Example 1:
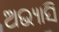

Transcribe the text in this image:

ଅଭ୍ୟାସି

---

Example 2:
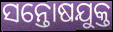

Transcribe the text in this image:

ସନ୍ତୋଷଯୁକ୍ତ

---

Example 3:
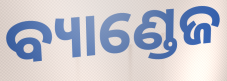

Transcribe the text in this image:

ବ୍ୟାଣ୍ଡେଜ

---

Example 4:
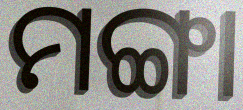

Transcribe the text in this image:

ମଙ୍ଗା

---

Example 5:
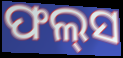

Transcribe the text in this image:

ଫଲ୍‍ସ